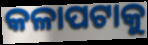
କଳାପଟାକୁ